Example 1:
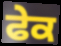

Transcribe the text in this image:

ਫੇਕ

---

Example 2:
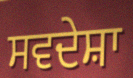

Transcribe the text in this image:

ਸਵਦੇਸ਼ਾ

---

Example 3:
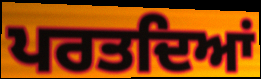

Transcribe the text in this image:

ਪਰਤਦਿਆਂ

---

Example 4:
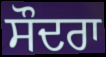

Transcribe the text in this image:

ਸੌਦਰਾ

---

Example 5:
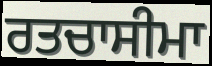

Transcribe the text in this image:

ਰਤਚਾਸੀਮਾ